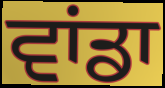
ਵਾਂਡਾ